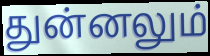
துன்னலும்